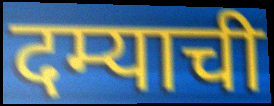
दम्याची